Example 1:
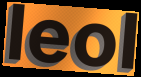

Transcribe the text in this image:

leol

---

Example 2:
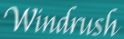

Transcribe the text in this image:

Windrush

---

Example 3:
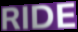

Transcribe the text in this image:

RIDE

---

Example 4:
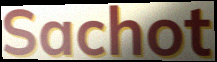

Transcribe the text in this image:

Sachot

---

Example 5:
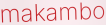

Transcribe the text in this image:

makambo